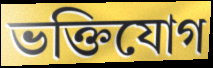
ভক্তিযোগ